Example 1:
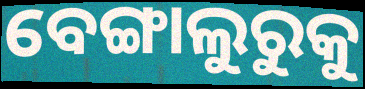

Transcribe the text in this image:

ବେଙ୍ଗାଲୁରୁକୁ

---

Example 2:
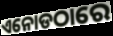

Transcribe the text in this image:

ଏନୋଡଠାରେ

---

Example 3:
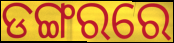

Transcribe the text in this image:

ଡଙ୍ଗରରେ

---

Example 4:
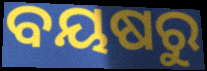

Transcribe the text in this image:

ବୟଷରୁ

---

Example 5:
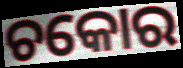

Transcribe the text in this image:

ଚକୋର